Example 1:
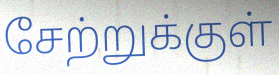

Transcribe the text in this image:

சேற்றுக்குள்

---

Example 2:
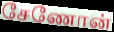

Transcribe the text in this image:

சேணோன்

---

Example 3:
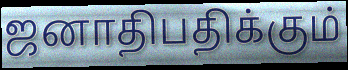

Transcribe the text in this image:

ஜனாதிபதிக்கும்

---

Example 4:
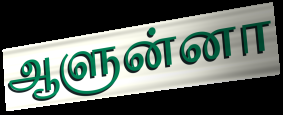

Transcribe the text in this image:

ஆளுன்னா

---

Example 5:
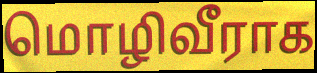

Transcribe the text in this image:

மொழிவீராக